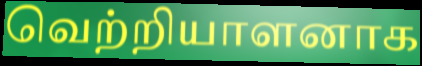
வெற்றியாளனாக